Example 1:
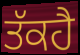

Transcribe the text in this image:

ਤੱਕਹੈ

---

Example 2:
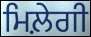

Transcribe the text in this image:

ਮਿਲ਼ੇਗੀ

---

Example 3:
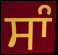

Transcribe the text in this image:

ਸਾੰ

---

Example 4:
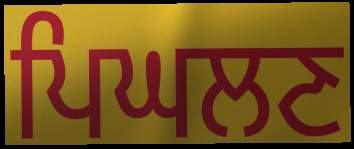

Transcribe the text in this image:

ਪਿਘਲਣ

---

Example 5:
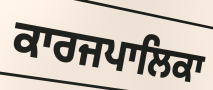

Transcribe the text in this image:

ਕਾਰਜਪਾਲਿਕਾ